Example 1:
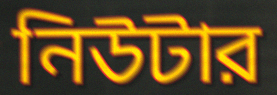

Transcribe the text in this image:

নিউটার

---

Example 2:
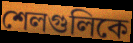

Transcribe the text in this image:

শেলগুলিকে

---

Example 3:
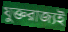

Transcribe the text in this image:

যুক্তরাজ্যই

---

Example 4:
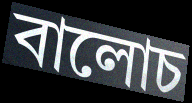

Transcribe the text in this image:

বালোচ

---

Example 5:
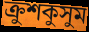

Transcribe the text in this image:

ক্রুশকুসুম